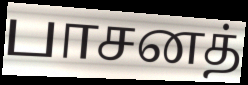
பாசனத்